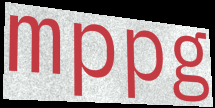
mppg